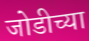
जोडीच्या